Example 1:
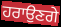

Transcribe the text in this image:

ਹਰਾਉਣਗੇ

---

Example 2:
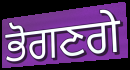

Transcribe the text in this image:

ਭੋਗਣਗੇ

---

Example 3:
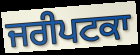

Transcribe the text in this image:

ਜਰੀਪਟਕਾ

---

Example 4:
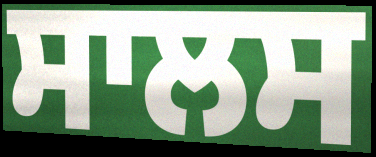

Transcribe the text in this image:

ਸਾਲਸ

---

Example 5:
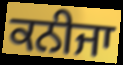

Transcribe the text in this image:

ਕਨੀਜਾ